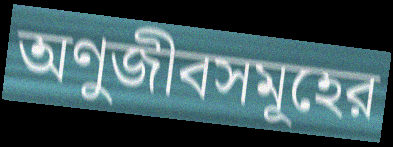
অণুজীবসমূহের